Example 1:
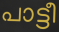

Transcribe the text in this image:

പാട്ടീ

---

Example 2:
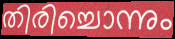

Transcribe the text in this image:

തിരിച്ചൊന്നും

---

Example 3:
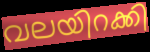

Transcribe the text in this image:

വലയിറക്കി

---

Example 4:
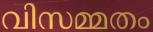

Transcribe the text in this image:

വിസമ്മതം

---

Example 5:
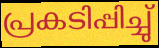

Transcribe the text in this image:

പ്രകടിപ്പിച്ചു്